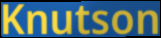
Knutson